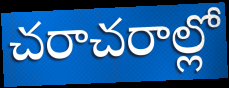
చరాచరాల్లో